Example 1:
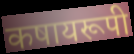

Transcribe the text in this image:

कषायरूपी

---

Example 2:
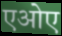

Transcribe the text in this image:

एओए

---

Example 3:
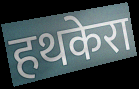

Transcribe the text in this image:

हथकेरा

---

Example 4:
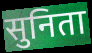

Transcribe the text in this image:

सुनिता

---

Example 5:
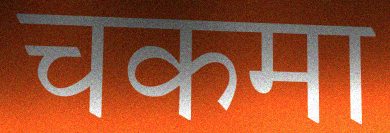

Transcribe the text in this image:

चकमा